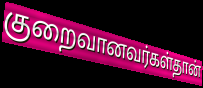
குறைவானவர்கள்தான்